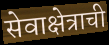
सेवाक्षेत्राची